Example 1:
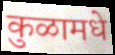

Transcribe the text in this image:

कुळामधे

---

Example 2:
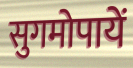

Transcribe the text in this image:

सुगमोपायें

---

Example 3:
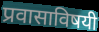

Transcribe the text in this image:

प्रवासाविषयी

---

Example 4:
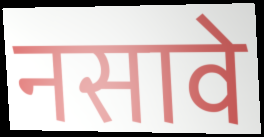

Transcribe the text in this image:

नसावे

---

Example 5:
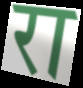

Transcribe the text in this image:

रा